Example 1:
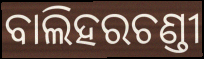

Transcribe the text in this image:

ବାଲିହରଚଣ୍ଡୀ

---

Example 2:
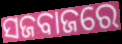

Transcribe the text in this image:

ସଜବାଜରେ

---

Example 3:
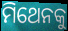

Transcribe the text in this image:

ମିଥେନକୁ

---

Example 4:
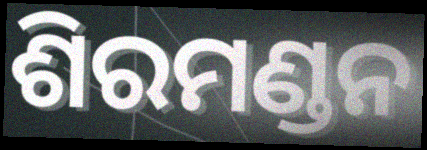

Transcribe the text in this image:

ଶିରମଣ୍ଡନ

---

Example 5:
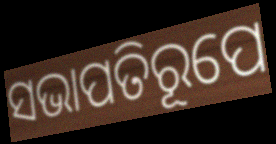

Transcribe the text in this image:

ସଭାପତିରୂପେ